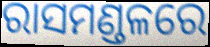
ରାସମଣ୍ଡଳରେ